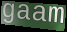
gaam